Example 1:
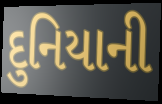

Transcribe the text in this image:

દુનિયાની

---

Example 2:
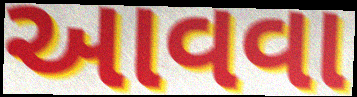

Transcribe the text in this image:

આવવા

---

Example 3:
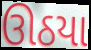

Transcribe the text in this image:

ઊઠયા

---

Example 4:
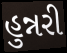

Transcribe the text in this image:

હુન્નરી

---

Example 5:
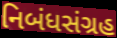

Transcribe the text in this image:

નિબંધસંગ્રહ